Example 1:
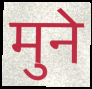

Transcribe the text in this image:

मुने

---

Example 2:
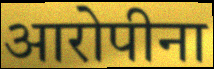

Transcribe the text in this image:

आरोपीना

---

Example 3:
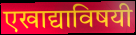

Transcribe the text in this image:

एखाद्याविषयी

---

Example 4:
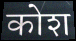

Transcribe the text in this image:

कोश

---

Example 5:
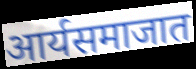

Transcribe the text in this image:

आर्यसमाजात